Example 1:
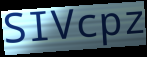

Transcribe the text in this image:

SIVcpz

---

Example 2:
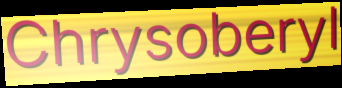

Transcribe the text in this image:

Chrysoberyl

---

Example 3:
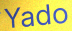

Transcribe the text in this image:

Yado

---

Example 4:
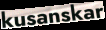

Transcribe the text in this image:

kusanskar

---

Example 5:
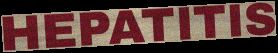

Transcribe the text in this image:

HEPATITIS